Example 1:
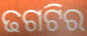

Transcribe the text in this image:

ଢଗଟିର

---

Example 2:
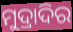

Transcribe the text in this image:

ମୁଦ୍ରାଦିର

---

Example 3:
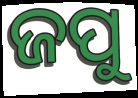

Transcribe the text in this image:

ଜପୁ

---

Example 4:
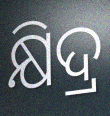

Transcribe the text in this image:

କ୍ଷିଦ୍ର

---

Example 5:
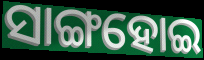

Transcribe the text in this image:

ସାଙ୍ଗହୋଇ